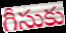
గీసుకు